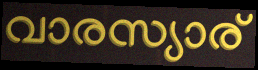
വാരസ്യാര്